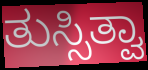
ತುಸ್ಸಿತ್ವಾ